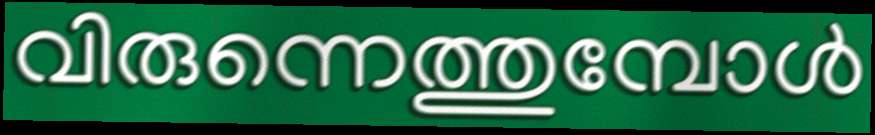
വിരുന്നെത്തുമ്പോൾ